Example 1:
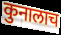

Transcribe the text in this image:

कुनालाच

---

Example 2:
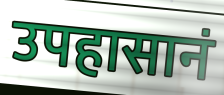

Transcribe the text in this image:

उपहासानं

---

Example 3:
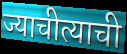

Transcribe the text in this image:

ज्याचीत्याची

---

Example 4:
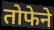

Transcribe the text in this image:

तोफेने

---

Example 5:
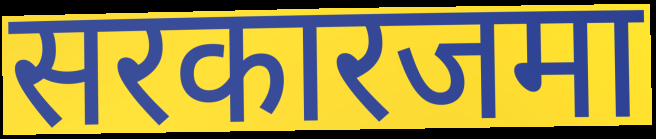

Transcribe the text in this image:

सरकारजमा